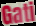
Gati